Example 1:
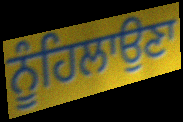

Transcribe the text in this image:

ਨੂੰਹਿਲਾਉਣਾ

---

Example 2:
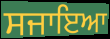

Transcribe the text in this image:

ਸਜਾਇਆ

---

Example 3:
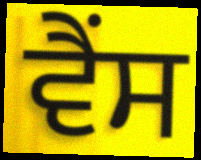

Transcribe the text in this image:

ਵੈਂਸ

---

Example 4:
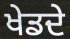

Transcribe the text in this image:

ਖੇਡਦੇ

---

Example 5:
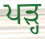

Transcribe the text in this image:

ਪੜ੍ਹ